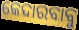
କେଦାରବାବୁ